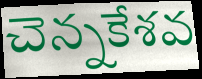
చెన్నకేశవ